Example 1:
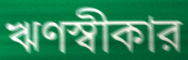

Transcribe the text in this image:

ঋণস্বীকার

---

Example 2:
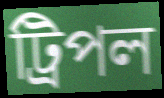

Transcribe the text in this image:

ট্রিপল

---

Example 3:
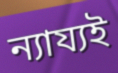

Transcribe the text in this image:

ন্যায্যই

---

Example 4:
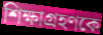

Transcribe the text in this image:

শিক্ষাগ্রহণকে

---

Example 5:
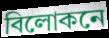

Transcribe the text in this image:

বিলোকনে